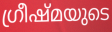
ഗ്രീഷ്മയുടെ